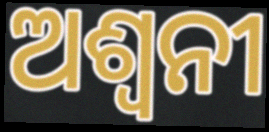
ଅଶ୍ଵନୀ